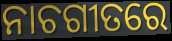
ନାଚଗୀତରେ